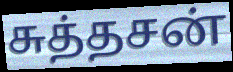
சுத்தசன்